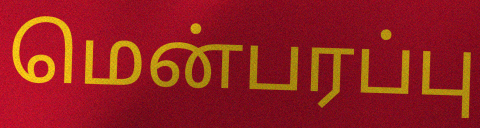
மென்பரப்பு